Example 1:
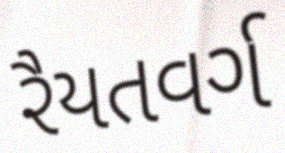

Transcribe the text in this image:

રૈયતવર્ગ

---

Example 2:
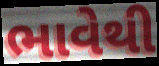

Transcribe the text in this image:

ભાવેથી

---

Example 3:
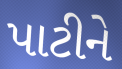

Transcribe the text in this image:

પાટીને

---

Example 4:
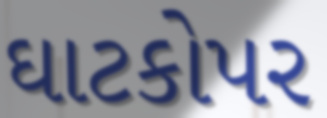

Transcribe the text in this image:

ઘાટકોપર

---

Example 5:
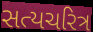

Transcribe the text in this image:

સત્યચરિત્ર